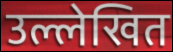
उल्लेखित